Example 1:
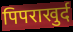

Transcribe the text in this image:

पिपराखुर्द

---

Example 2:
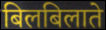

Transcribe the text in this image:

बिलबिलाते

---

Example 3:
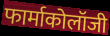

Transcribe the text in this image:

फार्माकोलॉजी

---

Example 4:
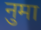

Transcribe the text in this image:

नुमा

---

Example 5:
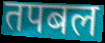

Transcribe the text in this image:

तपबल